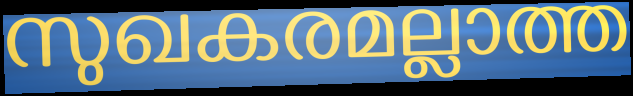
സുഖകരമല്ലാത്ത